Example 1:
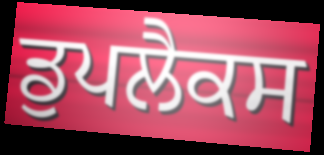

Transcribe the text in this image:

ਡੁਪਲੈਕਸ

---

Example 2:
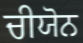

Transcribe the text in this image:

ਚੀਯੋਨ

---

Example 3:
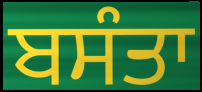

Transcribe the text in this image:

ਬਸੰਤਾ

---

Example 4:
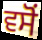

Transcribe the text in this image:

ਵਸੋਂ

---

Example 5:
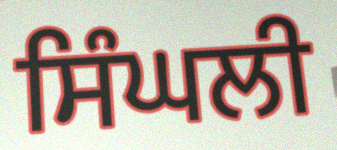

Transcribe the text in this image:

ਸਿੰਘਲੀ